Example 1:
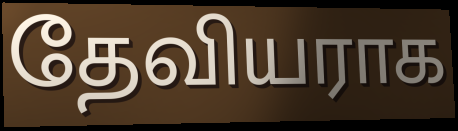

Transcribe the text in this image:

தேவியராக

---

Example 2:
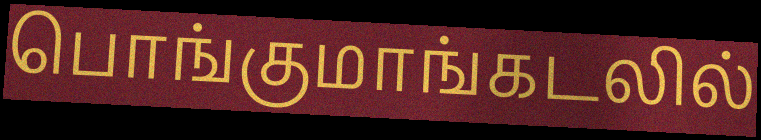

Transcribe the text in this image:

பொங்குமாங்கடலில்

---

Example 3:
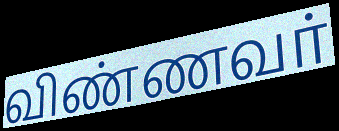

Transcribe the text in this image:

விண்ணவர்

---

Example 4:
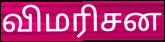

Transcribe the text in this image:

விமரிசன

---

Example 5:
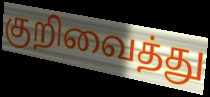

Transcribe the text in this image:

குறிவைத்து